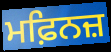
ਮਫ਼ਿਨਜ਼